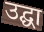
उद्घा